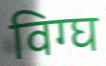
विग्घ